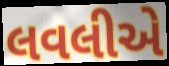
લવલીએ